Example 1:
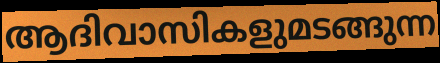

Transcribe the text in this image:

ആദിവാസികളുമടങ്ങുന്ന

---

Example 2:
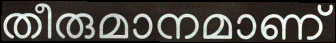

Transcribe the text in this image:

തീരുമാനമാണ്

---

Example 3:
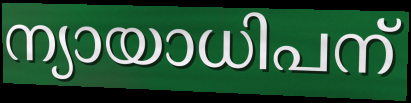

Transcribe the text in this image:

ന്യായാധിപന്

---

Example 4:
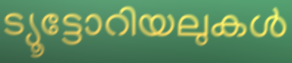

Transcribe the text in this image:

ട്യൂട്ടോറിയലുകൾ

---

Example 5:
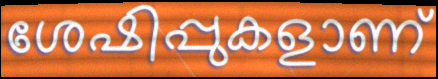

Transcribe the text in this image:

ശേഷിപ്പുകളാണ്